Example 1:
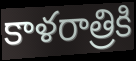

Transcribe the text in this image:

కాళరాత్రికి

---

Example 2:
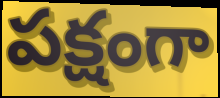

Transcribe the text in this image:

పక్షంగా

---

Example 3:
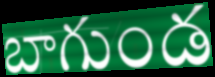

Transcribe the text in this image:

బాగుండ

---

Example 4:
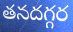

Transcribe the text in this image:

తనదగ్గర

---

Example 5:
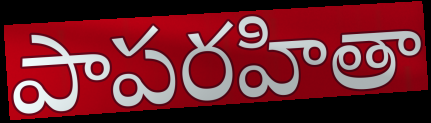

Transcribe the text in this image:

పాపరహితా